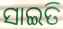
ସାଇତି